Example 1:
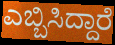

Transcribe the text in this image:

ಎಬ್ಬಿಸಿದ್ದಾರೆ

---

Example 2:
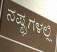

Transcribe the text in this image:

ನಷ್ಟಗಳಲ್ಲಿ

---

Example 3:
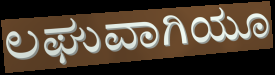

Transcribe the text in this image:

ಲಘುವಾಗಿಯೂ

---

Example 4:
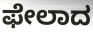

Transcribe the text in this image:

ಫೇಲಾದ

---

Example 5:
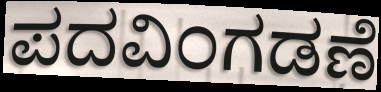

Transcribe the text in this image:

ಪದವಿಂಗಡಣೆ